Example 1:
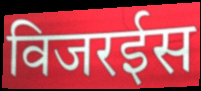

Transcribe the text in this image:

विजरईस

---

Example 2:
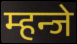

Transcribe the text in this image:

म्हन्जे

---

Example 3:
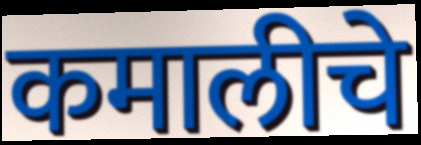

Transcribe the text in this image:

कमालीचे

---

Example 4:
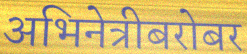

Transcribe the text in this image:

अभिनेत्रीबरोबर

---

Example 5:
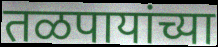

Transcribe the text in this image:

तळपायांच्या